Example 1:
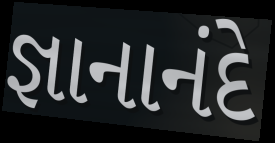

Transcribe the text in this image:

જ્ઞાનાનંદે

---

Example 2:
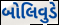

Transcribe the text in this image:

બોલિવુડે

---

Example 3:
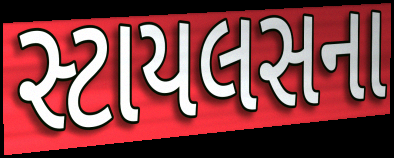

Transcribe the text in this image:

સ્ટાયલસના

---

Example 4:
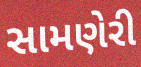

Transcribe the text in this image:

સામણેરી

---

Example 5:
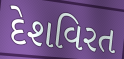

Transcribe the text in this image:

દેશવિરત